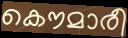
കൌമാരീ